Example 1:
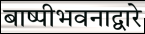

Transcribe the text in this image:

बाष्पीभवनाद्वारे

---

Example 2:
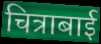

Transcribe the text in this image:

चित्राबाई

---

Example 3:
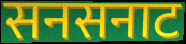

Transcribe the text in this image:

सनसनाट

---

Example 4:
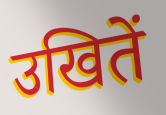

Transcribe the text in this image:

उखितें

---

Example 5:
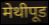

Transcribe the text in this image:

मेथीपूड